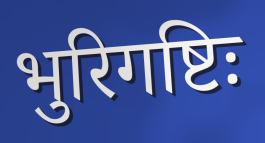
भुरिगष्टिः